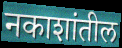
नकाशांतील